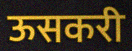
ऊसकरी